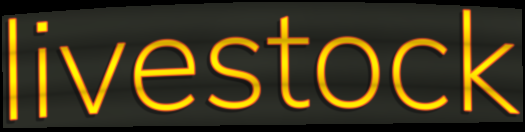
livestock